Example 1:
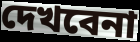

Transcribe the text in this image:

দেখবেনা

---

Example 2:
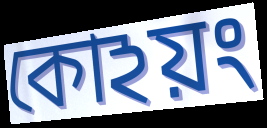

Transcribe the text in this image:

কোঽয়ং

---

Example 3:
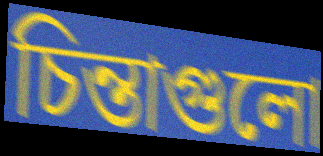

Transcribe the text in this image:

চিন্তাগুলো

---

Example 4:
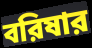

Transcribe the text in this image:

বরিষার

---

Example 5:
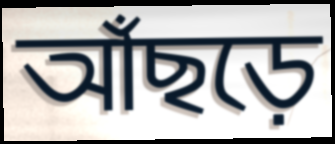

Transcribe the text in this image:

আঁছড়ে